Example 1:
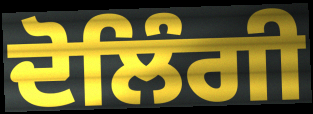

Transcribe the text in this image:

ਦੋਲਿੰਗੀ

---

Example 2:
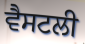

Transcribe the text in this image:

ਵੈਸਟਲੀ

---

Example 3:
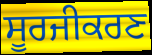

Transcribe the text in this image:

ਸੂਰਜੀਕਰਣ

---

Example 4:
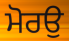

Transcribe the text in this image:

ਮੋਰਉ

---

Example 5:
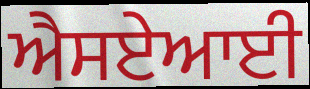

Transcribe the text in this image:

ਐਸਏਆਈ